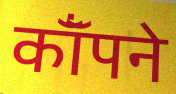
कॉँपने